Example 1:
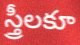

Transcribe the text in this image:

స్త్రీలకూ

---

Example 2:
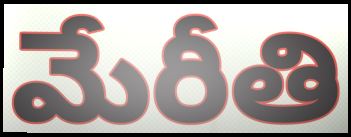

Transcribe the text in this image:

మేరీతి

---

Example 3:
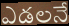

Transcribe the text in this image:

ఎడలనే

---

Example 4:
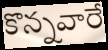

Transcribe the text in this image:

కొన్నవారే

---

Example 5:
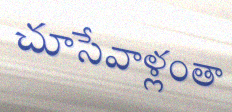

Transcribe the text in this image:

చూసేవాళ్లంతా